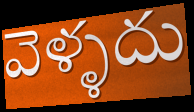
వెళ్ళదు